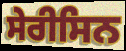
ਸੇਰੀਸਿਨ